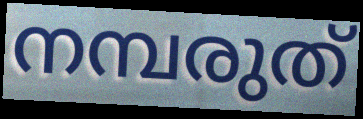
നമ്പരുത്